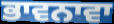
ਭਾਵਨਾਵਾ